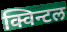
क्विन्टल